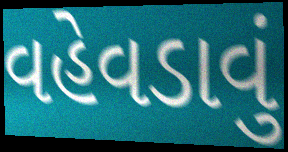
વહેવડાવું